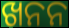
ଖନନ